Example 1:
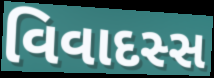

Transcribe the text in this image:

વિવાદસ્સ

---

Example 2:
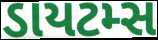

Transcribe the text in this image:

ડાયટમ્સ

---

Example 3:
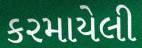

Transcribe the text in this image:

કરમાયેલી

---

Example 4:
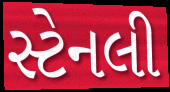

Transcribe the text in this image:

સ્ટેનલી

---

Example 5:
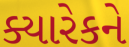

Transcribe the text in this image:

ક્યારેકને